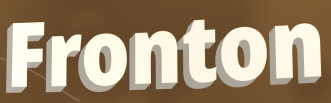
Fronton